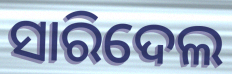
ସାରିଦେଲ